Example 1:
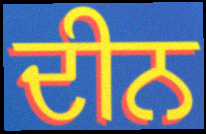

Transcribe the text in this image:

ਦੀਨ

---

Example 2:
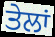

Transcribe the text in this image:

ਤੇਲਾਂ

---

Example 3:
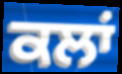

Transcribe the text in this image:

ਕਲਾਂ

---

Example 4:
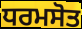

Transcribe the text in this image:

ਧਰਮਸੋਤ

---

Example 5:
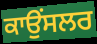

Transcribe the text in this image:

ਕਾਉਂਸਲਰ